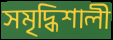
সমৃদ্ধিশালী